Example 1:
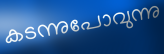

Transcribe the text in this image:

കടന്നുപോവുന്നു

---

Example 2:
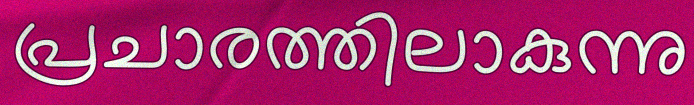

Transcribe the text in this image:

പ്രചാരത്തിലാകുന്നു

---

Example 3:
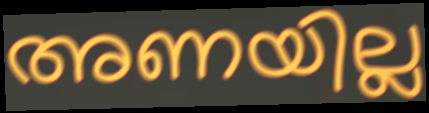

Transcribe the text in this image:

അണയില്ല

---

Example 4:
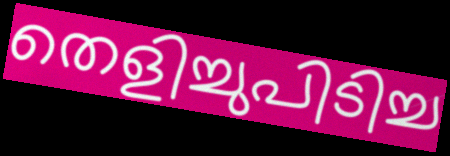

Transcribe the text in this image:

തെളിച്ചുപിടിച്ച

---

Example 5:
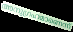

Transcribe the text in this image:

അനുഗ്രഹമാണെന്ന്